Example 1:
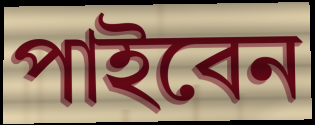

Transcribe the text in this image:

পাইবেন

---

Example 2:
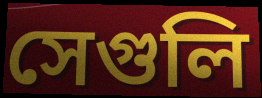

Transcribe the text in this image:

সেগুলি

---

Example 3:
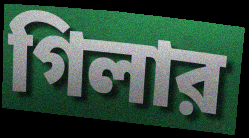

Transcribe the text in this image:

গিলার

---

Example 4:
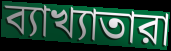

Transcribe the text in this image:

ব্যাখ্যাতারা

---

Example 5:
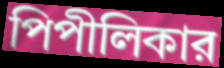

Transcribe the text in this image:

পিপীলিকার